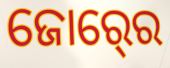
ଜୋର୍‍ରେ